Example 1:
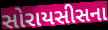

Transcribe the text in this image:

સોરાયસીસના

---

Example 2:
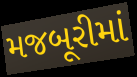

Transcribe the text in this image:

મજબૂરીમાં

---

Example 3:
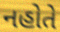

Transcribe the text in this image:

નહોતે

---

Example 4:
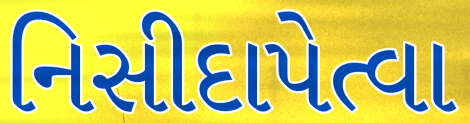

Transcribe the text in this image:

નિસીદાપેત્વા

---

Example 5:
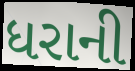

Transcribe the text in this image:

ધરાની